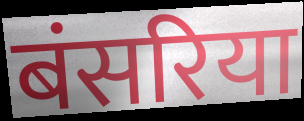
बंसरिया